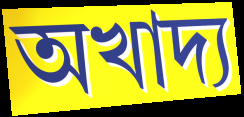
অখাদ্য